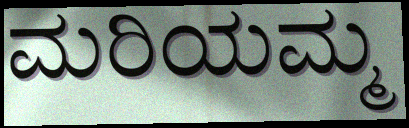
ಮರಿಯಮ್ಮ